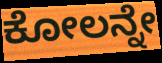
ಕೋಲನ್ನೇ